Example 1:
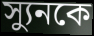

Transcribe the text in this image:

স্যুনকে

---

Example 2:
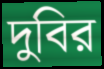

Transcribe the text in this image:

দুবির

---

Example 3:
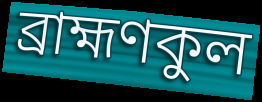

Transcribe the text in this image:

ব্রাহ্মণকুল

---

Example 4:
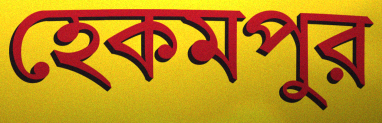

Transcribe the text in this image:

হেকমপুর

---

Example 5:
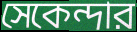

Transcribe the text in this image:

সেকেন্দার